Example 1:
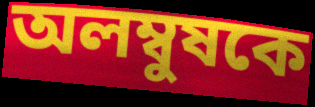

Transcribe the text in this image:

অলম্বুষকে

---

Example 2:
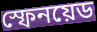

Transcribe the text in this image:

স্ফেনয়েড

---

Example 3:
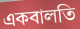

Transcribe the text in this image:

একবালতি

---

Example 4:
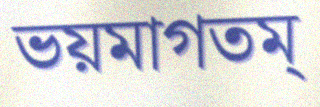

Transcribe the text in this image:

ভয়মাগতম্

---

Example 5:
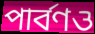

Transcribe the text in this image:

পার্বণও